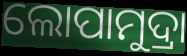
ଲୋପାମୁଦ୍ରା